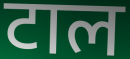
टाल